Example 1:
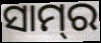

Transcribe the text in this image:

ସାମ୍‌ର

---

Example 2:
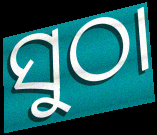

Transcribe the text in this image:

ସୁଠା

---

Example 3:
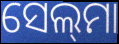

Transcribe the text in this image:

ସେଲ୍‌ମା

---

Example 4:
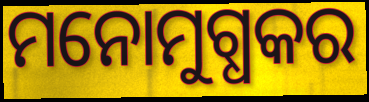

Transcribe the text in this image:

ମନୋମୁଗ୍ଧକର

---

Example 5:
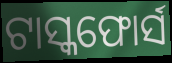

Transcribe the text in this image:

ଟାସ୍କଫୋର୍ସ